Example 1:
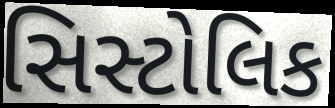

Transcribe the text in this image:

સિસ્ટોલિક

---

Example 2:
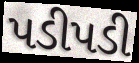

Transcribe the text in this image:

પડીપડી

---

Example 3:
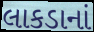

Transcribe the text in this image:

લાકડાનાં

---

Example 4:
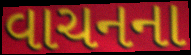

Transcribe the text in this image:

વાચનના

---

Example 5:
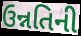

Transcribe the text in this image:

ઉન્નતિની